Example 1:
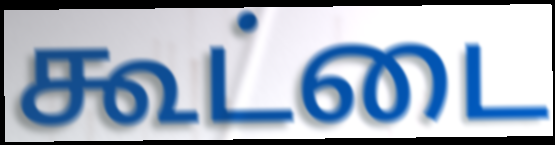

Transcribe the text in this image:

கூட்டை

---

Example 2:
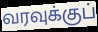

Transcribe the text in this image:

வரவுக்குப்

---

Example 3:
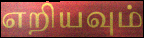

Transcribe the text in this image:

எறியவும்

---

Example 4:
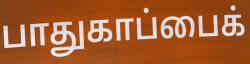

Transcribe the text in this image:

பாதுகாப்பைக்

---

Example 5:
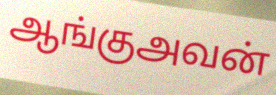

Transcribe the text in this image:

ஆங்குஅவன்